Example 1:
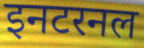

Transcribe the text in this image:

इनटरनल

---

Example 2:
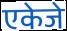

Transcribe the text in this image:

एकेजे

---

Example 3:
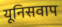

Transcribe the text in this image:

यूनिसवाप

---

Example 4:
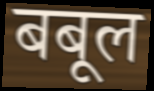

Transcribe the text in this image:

बबूल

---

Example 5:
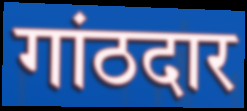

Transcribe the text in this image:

गांठदार